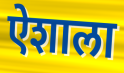
ऐशाला